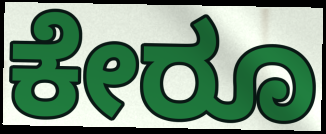
ಕೇರೂ